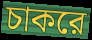
চাকরে